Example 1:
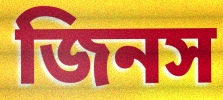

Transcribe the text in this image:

জিনস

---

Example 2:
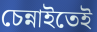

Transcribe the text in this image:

চেন্নাইতেই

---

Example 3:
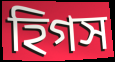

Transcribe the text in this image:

হিগস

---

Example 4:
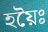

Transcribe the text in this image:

হয়ৈঃ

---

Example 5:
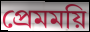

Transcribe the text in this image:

প্রেমময়ি